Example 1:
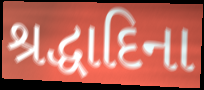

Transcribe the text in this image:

શ્રદ્ધાદિના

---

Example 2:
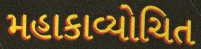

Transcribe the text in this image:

મહાકાવ્યોચિત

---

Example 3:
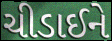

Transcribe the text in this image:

ચીડાઈને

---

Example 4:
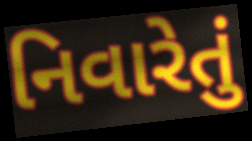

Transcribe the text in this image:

નિવારેતું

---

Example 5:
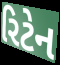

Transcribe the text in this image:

રિટેન